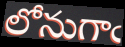
లోనుగాఁ